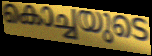
കൊച്ചയുടെ